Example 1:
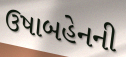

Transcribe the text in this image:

ઉષાબહેનની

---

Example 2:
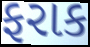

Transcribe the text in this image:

ફરાક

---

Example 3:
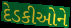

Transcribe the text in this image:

દેડકીઓને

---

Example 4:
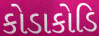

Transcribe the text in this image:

કોડાકોડિ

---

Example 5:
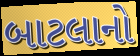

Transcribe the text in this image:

બાટલાનો